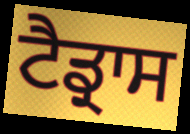
ਟੈਡ੍ਰਾਸ